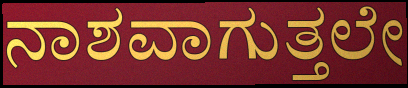
ನಾಶವಾಗುತ್ತಲೇ